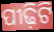
ପୀଢ଼ିଟି